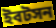
ইবটসন